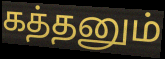
கத்தனும்